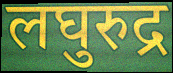
लघुरुद्र